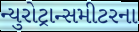
ન્યુરોટ્રાન્સમીટરના